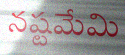
నష్టమేమి